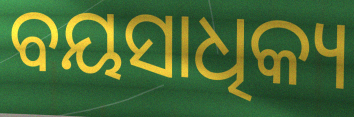
ବୟସାଧିକ୍ୟ